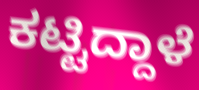
ಕಟ್ಟಿದ್ದಾಳೆ